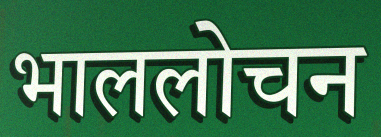
भाललोचन